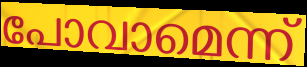
പോവാമെന്ന്